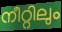
നീറ്റിലും